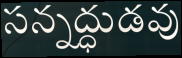
సన్నద్ధుడవు